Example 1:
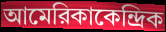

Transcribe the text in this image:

আমেরিকাকেন্দ্রিক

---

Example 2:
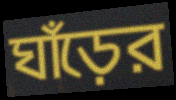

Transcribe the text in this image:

ঘাঁড়ের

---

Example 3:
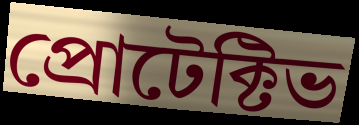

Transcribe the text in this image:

প্রোটেক্টিভ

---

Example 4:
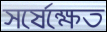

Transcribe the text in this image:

সর্ষেক্ষেত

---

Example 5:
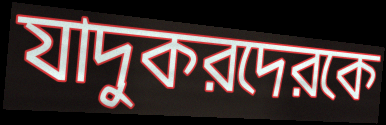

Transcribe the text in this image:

যাদুকরদেরকে